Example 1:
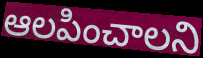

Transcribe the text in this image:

ఆలపించాలని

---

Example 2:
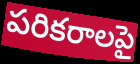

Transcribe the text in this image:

పరికరాలపై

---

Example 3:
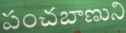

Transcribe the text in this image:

పంచబాణుని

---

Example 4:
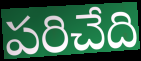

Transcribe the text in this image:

పరిచేది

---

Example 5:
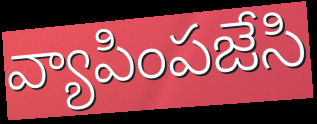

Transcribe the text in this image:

వ్యాపింపజేసి